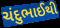
ચંદુભાઈથી